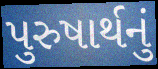
પુરુષાર્થનું